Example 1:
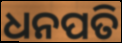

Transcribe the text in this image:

ଧନପତି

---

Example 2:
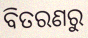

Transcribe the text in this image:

ବିତରଣରୁ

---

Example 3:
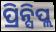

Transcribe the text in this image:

ପ୍ରିନ୍ସିପ୍ଲ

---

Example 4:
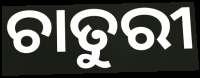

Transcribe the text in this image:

ଚାତୁରୀ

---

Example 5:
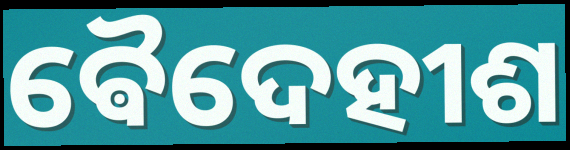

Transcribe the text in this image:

ଵୈଦେହୀଶ